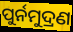
ପୁର୍ନମୁଦ୍ରଣ